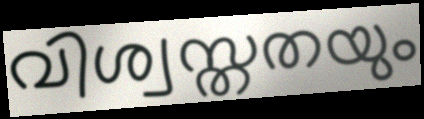
വിശ്വസ്തതയും